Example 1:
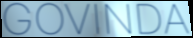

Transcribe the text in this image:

GOVINDA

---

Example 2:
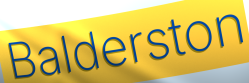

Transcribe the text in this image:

Balderston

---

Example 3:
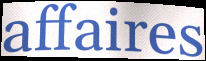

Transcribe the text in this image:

affaires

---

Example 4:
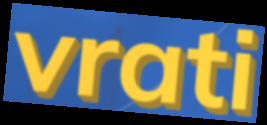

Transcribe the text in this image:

vrati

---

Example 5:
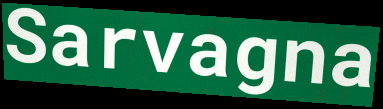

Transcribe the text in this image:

Sarvagna